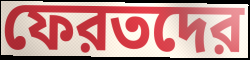
ফেরতদের